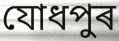
যোধপুৰ